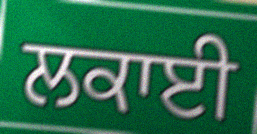
ਲਕਾਈ